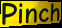
Pinch